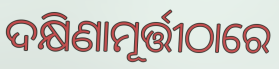
ଦକ୍ଷିଣାମୂର୍ତ୍ତୀଠାରେ